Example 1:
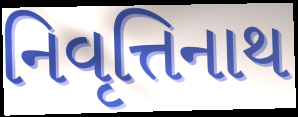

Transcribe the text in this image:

નિવૃત્તિનાથ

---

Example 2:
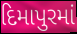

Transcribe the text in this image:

દિમાપુરમાં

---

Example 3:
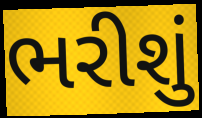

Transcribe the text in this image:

ભરીશું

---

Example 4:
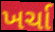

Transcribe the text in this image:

ખર્ચા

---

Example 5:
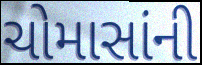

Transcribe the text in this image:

ચોમાસાંની